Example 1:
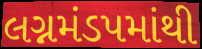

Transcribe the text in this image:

લગ્નમંડપમાંથી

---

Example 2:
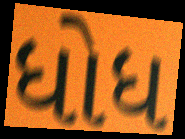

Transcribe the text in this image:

ધોધ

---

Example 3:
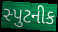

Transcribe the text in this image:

સ્પુટનીક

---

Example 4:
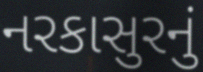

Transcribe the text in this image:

નરકાસુરનું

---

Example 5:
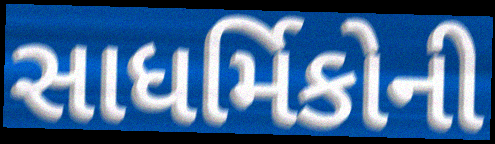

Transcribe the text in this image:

સાધર્મિકોની